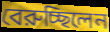
বেরুচ্ছিলেন